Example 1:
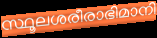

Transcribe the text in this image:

സ്ഥൂലശരീരാഭിമാനി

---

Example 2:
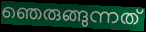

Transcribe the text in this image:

ഞെരുങ്ങുന്നത്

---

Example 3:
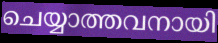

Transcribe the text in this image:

ചെയ്യാത്തവനായി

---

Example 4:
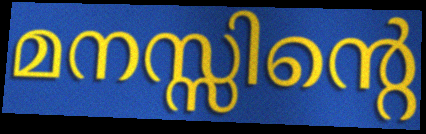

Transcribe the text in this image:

മനസ്സിന്റെ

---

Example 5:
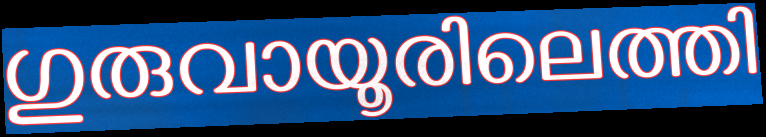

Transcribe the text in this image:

ഗുരുവായൂരിലെത്തി